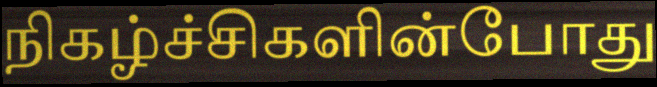
நிகழ்ச்சிகளின்போது